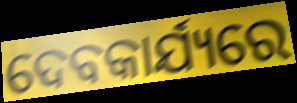
ଦେବକାର୍ଯ୍ୟରେ